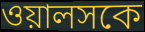
ওয়ালসকে